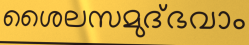
ശൈലസമുദ്ഭവാം